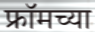
फ्रॉमच्या